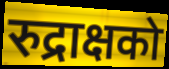
रुद्राक्षको